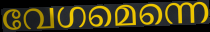
വേഗമെന്നെ